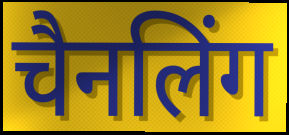
चैनलिंग